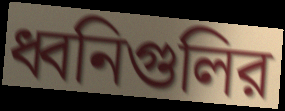
ধ্বনিগুলির